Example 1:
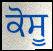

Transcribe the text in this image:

ਕੋਸੂ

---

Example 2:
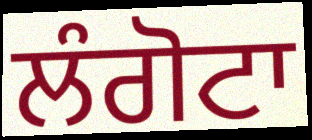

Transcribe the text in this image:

ਲੰਗੋਟਾ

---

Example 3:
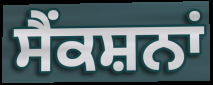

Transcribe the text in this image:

ਸੈਂਕਸ਼ਨਾਂ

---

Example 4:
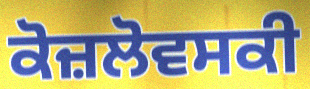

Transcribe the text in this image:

ਕੋਜ਼ਲੋਵਸਕੀ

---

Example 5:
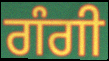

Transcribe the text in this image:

ਗੰਗੀ